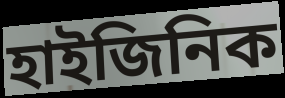
হাইজিনিক